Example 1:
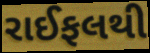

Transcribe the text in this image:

રાઈફલથી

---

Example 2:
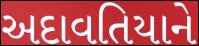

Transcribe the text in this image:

અદાવતિયાને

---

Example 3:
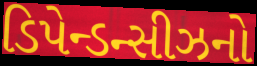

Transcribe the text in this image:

ડિપેન્ડન્સીઝનો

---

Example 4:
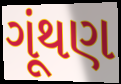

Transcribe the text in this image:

ગૂંથણ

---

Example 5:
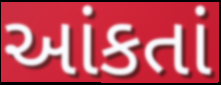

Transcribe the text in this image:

આંકતાં